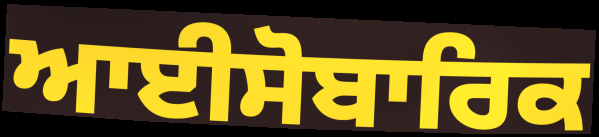
ਆਈਸੋਬਾਰਿਕ